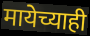
मायेच्याही